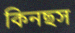
কিনছস